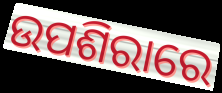
ଉପଶିରାରେ